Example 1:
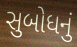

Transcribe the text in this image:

સુબોધનું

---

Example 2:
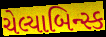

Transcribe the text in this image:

ચેલ્યાબિન્સ્ક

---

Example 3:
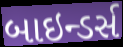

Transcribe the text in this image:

બાઇન્ડર્સ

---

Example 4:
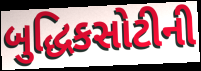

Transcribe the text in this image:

બુદ્ધિકસોટીની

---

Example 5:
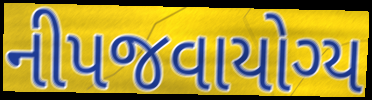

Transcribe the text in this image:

નીપજવાયોગ્ય